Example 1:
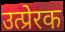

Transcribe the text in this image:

उत्प्रेरक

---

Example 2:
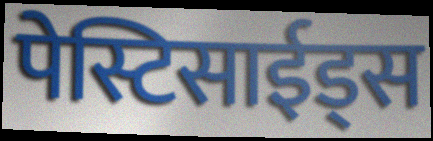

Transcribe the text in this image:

पेस्टिसाईड्स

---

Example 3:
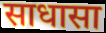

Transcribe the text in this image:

साधासा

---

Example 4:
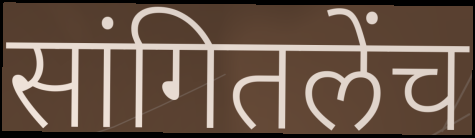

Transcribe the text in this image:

सांगितलेंच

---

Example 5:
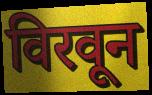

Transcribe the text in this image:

विरवून